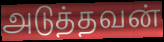
அடுத்தவன்